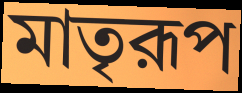
মাতৃরূপ